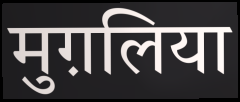
मुग़लिया